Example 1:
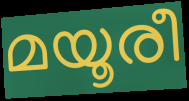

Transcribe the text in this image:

മയൂരീ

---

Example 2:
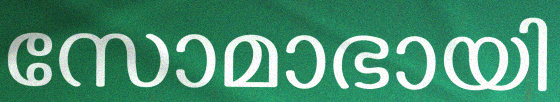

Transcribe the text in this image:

സോമാഭായി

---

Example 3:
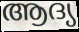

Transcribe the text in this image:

ആദ്യ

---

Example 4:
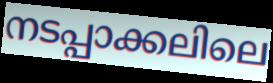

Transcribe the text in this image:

നടപ്പാക്കലിലെ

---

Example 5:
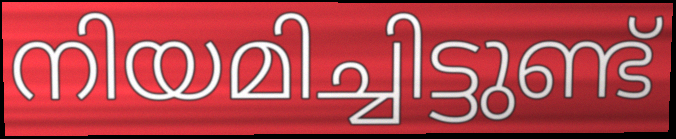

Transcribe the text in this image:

നിയമിച്ചിട്ടുണ്ട്